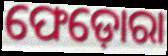
ଫେଡ଼ୋରା